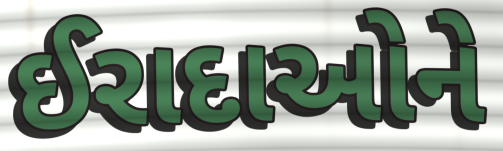
ઈરાદાઓને